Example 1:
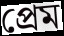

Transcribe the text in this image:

প্ৰেম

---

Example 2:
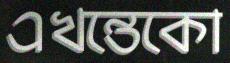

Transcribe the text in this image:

এখন্তেকো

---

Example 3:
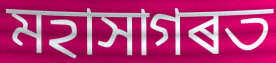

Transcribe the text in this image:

মহাসাগৰত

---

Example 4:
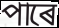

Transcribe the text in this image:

পাৰে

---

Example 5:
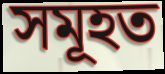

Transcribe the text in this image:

সমূহত